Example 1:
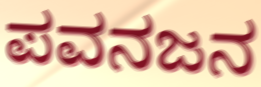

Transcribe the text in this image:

ಪವನಜನ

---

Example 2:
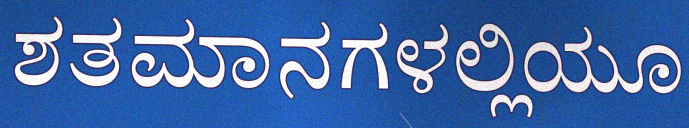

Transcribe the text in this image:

ಶತಮಾನಗಳಲ್ಲಿಯೂ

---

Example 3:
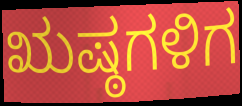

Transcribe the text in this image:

ಋಷ್ಠಗಳಿಗ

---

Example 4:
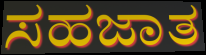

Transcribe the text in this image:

ಸಹಜಾತ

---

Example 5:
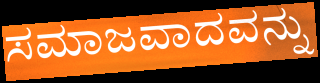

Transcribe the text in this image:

ಸಮಾಜವಾದವನ್ನು